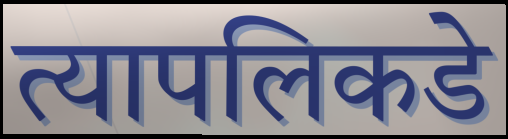
त्यापलिकडे